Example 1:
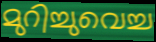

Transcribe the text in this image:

മുറിച്ചുവെച്ച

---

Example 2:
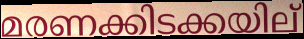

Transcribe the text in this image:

മരണക്കിടക്കയില്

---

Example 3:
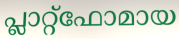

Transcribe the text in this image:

പ്ലാറ്റ്ഫോമായ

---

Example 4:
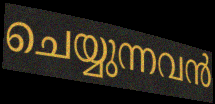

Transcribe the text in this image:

ചെയ്യുന്നവൻ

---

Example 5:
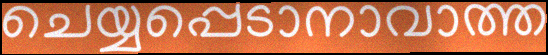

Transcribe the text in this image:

ചെയ്യപ്പെടാനാവാത്ത